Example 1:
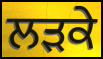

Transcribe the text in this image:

ਲੜਕੇ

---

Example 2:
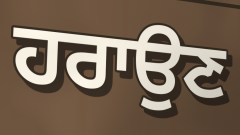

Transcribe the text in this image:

ਹਰਾਉਣ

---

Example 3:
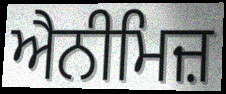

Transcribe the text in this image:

ਐਨੀਮਿਜ਼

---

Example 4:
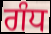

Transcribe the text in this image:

ਗੰਧ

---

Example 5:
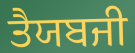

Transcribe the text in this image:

ਤੈਯਬਜੀ